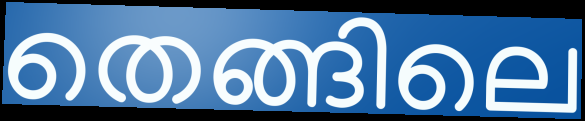
തെങ്ങിലെ